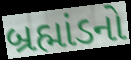
બ્રહ્માંડનો